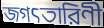
জগৎতারিণী